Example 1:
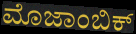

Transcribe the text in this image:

ಮೊಜಾಂಬಿಕ್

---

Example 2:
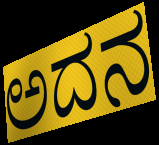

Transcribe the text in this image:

ಅದನ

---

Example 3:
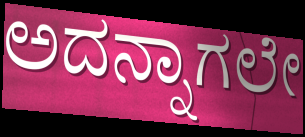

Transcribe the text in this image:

ಅದನ್ನಾಗಲೇ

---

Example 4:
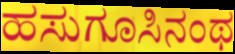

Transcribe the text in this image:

ಹಸುಗೂಸಿನಂಥ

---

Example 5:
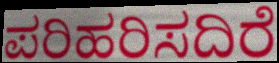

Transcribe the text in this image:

ಪರಿಹರಿಸದಿರೆ